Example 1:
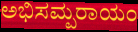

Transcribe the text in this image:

ಅಭಿಸಮ್ಪರಾಯಂ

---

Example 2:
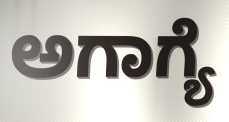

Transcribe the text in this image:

ಅಗಾಗ್ಯೆ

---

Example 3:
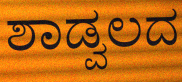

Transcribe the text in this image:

ಶಾಡ್ವಲದ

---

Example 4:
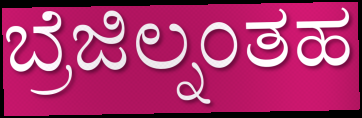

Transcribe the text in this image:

ಬ್ರೆಜಿಲ್ನಂತಹ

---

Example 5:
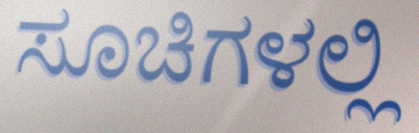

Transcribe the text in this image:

ಸೂಚಿಗಳಲ್ಲಿ